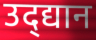
उद्द्यान